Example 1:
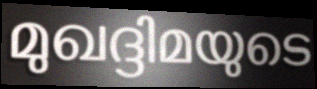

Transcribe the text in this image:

മുഖദ്ദിമയുടെ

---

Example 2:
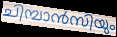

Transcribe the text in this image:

ചിമ്പാൻസിയും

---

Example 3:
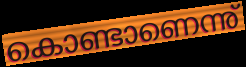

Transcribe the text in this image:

കൊണ്ടാണെന്നു്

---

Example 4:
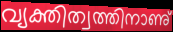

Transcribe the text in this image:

വ്യക്തിത്വത്തിനാണു്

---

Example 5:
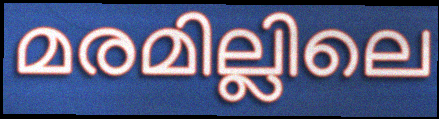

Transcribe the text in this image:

മരമില്ലിലെ